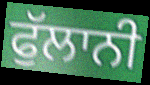
ਫੁੱਲਾਨੀ